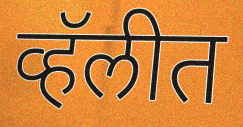
व्हॅलीत